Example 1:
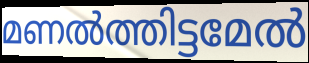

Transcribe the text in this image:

മണൽത്തിട്ടമേൽ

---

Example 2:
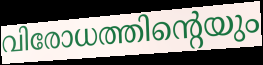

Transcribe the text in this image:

വിരോധത്തിന്റെയും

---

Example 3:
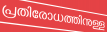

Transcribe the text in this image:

പ്രതിരോധത്തിനുള്ള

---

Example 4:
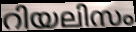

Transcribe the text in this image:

റിയലിസം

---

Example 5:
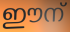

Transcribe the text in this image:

ഈന്